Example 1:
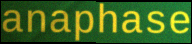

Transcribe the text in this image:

anaphase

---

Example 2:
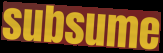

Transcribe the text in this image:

subsume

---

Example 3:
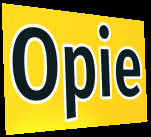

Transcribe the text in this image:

Opie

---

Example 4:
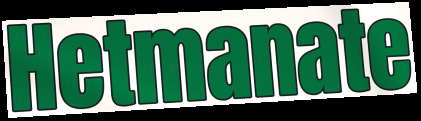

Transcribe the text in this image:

Hetmanate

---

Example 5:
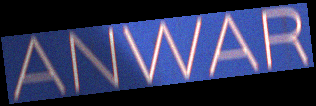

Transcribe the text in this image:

ANWAR